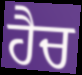
ਹੈਚ